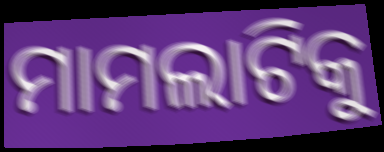
ମାମଲାଟିକୁ